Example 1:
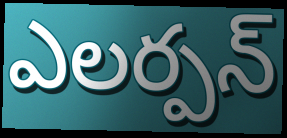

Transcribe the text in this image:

ఎలర్పన్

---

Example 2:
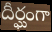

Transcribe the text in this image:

దీర్ఘంగా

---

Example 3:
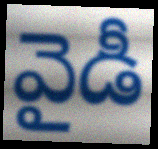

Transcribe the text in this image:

వైడీ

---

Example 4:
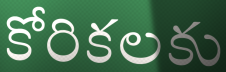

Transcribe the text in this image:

కోరికలకు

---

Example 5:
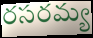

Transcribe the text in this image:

రసరమ్య